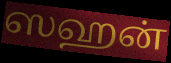
ஸஹன்